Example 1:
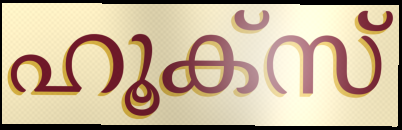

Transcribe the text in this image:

ഹൂക്സ്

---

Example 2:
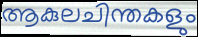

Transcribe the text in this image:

ആകുലചിന്തകളും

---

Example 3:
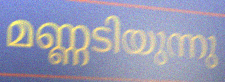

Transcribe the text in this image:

മണ്ണടിയുന്നു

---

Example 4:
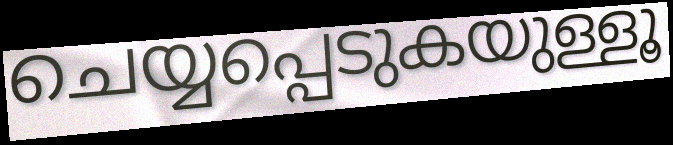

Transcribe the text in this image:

ചെയ്യപ്പെടുകയുള്ളൂ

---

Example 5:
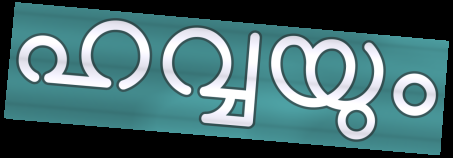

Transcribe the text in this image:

ഹവ്വയും